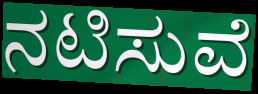
ನಟಿಸುವೆ